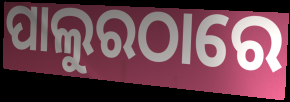
ପାଲୁରଠାରେ